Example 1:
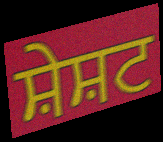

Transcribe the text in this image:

ਸ਼ੇਸ਼ਟ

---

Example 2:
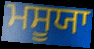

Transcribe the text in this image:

ਮਸੂਯਾ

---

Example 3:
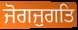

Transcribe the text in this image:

ਜੋਗਜੁਗਤਿ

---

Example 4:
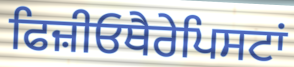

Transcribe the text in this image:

ਫਿਜ਼ੀਓਥੈਰੇਪਿਸਟਾਂ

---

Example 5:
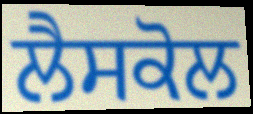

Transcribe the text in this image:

ਲੈਸਕੋਲ